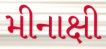
મીનાક્ષી